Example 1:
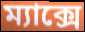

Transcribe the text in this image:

ম্যাক্সে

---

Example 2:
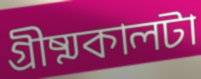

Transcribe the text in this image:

গ্রীষ্মকালটা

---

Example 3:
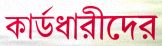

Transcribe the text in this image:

কার্ডধারীদের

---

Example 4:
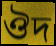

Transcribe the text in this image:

ঔদ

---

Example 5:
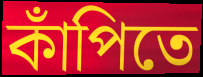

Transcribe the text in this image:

কাঁপিতে